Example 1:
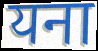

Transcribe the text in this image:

यना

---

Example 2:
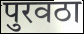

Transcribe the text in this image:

पुरवठा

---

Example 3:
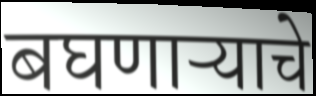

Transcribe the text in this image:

बघणाऱ्याचे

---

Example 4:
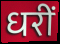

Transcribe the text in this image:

धरीं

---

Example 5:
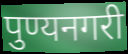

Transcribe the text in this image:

पुण्यनगरी